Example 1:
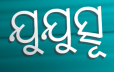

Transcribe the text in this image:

ଯୁଯୁତ୍ସୂ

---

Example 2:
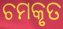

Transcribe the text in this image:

ଚମକୃତ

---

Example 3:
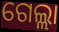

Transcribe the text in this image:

ଗେଲ୍ଲା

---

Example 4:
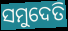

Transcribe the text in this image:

ସମୁଦେତି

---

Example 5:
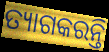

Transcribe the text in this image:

ତ୍ୟାଗକରନ୍ତି